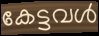
കേട്ടവൾ